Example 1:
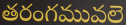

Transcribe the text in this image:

తరంగమువలె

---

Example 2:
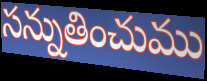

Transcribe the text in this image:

సన్నుతించుము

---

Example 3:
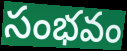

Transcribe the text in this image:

సంభవం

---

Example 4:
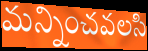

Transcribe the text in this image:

మన్నించవలసి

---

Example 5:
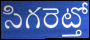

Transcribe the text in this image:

సిగరెట్తో